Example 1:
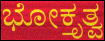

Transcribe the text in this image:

ಭೋಕ್ತೃತ್ವ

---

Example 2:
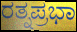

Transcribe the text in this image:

ರತ್ನಪ್ರಭಾ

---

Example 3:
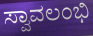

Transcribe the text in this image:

ಸ್ವಾವಲಂಭಿ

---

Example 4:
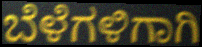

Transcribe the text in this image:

ಬೆಳೆಗಳಿಗಾಗಿ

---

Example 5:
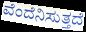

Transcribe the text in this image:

ವೆಂದೆನಿಸುತ್ತದೆ